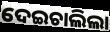
ଦେଇଚାଲିଲା